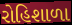
રોહિશાળા